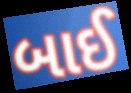
બાઈ